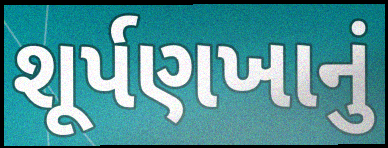
શૂર્પણખાનું